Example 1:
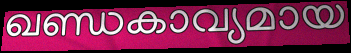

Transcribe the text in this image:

ഖണ്ഡകാവ്യമായ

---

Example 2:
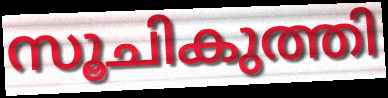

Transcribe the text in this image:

സൂചികുത്തി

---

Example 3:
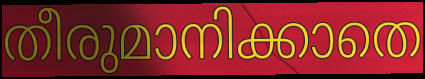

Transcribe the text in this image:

തീരുമാനിക്കാതെ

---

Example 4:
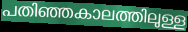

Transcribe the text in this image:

പതിഞ്ഞകാലത്തിലുള്ള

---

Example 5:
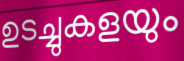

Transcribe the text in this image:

ഉടച്ചുകളയും